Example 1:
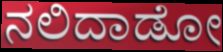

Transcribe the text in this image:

ನಲಿದಾಡೋ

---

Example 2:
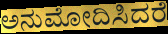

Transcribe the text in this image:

ಅನುಮೋದಿಸಿದರೆ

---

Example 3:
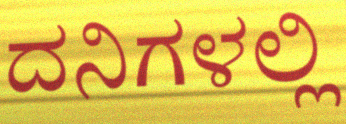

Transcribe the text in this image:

ದನಿಗಳಲ್ಲಿ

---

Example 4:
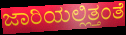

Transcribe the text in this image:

ಜಾರಿಯಲ್ಲಿತ್ತಂತೆ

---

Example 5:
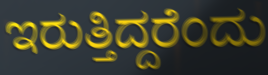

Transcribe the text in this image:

ಇರುತ್ತಿದ್ದರೆಂದು